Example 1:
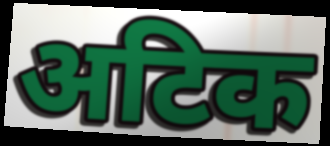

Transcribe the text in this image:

अटिक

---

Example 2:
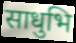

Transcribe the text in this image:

साधुभि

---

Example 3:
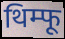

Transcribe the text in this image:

थिम्फू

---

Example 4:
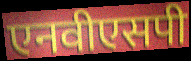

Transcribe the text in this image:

एनवीएसपी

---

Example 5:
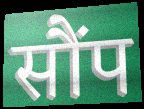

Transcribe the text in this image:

सौंप